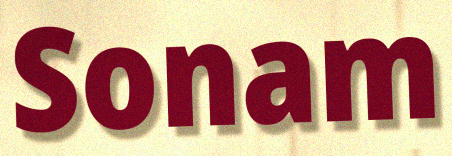
Sonam